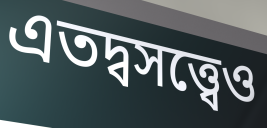
এতদ্বসত্ত্বেও